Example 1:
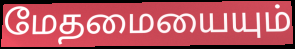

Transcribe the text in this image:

மேதமையையும்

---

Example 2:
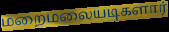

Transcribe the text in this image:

மறைமலையடிகளார்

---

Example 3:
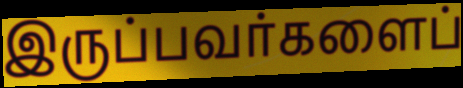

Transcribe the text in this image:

இருப்பவர்களைப்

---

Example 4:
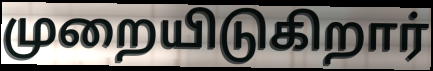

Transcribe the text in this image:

முறையிடுகிறார்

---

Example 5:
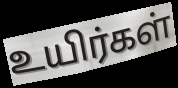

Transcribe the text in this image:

உயிர்கள்